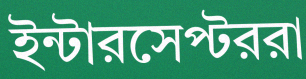
ইন্টারসেপ্টররা